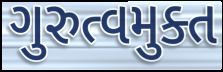
ગુરુત્વમુક્ત